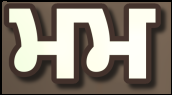
ਮਮ